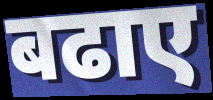
बढाए